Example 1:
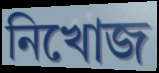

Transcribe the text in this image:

নিখোজ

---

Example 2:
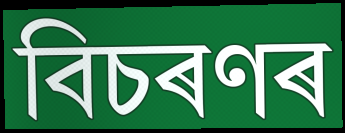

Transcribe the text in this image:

বিচৰণৰ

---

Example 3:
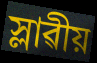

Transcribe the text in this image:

স্লাৱীয়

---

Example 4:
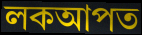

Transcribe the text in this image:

লকআপত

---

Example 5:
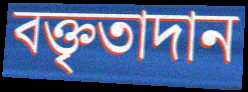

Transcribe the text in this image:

বক্তৃতাদান